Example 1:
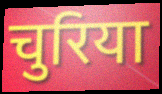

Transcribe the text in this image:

चुरिया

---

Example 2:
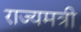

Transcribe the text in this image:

राज्यमत्री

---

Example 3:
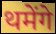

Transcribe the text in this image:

थमेंगे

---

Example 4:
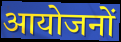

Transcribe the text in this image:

आयोजनों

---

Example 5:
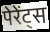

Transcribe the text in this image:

पेरेंट्स